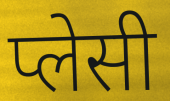
प्लेसी